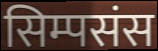
सिम्पसंस